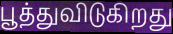
பூத்துவிடுகிறது